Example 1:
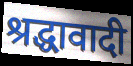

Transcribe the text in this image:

श्रद्धावादी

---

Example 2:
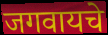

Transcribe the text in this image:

जगवायचे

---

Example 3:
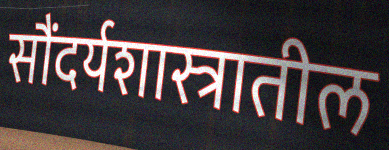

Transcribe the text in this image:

सौंदर्यशास्त्रातील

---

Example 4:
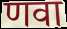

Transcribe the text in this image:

णवा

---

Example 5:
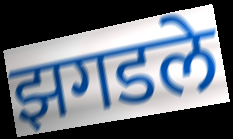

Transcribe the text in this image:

झगडले